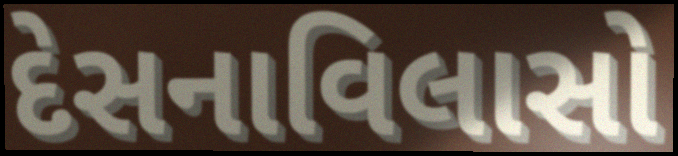
દેસનાવિલાસો